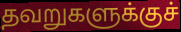
தவறுகளுக்குச்